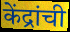
केंद्रांची